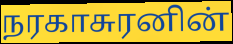
நரகாசுரனின்